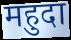
महुदा